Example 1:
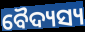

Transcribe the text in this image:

ବୈଦ୍ୟସ୍ୟ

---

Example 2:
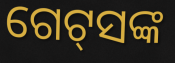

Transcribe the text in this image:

ଗେଟ୍‌ସଙ୍କ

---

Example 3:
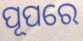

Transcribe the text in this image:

ପୂପରେ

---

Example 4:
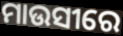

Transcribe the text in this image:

ମାଉସୀରେ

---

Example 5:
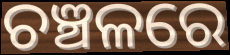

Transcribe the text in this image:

ଚଞ୍ଚଳରେ